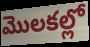
మొలకల్లో